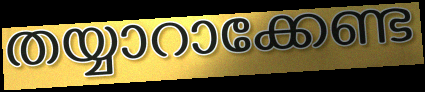
തയ്യാറാക്കേണ്ട